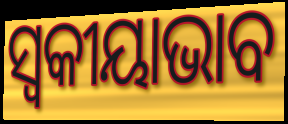
ସ୍ୱକୀୟାଭାବ